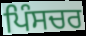
ਪਿੰਸਚਰ